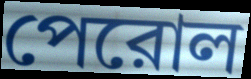
পেরোল